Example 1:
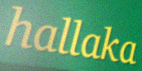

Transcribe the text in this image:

hallaka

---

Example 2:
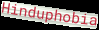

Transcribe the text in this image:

Hinduphobia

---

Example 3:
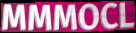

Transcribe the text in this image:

MMMOCL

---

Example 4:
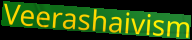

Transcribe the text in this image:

Veerashaivism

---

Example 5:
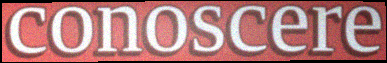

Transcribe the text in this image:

conoscere